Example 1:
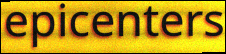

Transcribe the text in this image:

epicenters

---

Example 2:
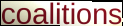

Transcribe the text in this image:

coalitions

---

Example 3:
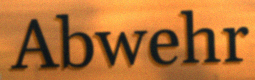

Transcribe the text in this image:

Abwehr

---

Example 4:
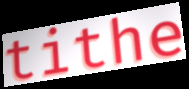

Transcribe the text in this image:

tithe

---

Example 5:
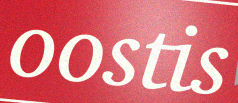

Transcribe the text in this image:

oostis